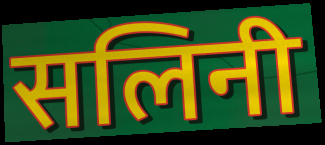
सलिनी